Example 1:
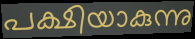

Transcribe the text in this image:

പക്ഷിയാകുന്നു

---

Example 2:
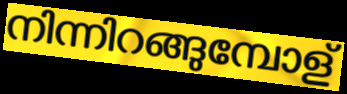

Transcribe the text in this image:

നിന്നിറങ്ങുമ്പോള്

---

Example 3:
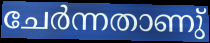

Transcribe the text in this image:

ചേർന്നതാണു്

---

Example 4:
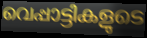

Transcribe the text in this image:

വെപ്പാട്ടികളുടെ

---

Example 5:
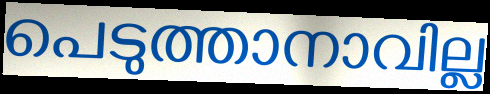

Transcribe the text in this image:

പെടുത്താനാവില്ല